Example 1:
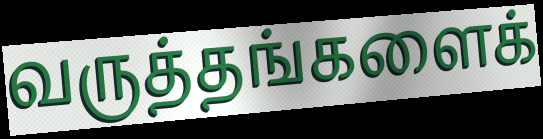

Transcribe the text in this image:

வருத்தங்களைக்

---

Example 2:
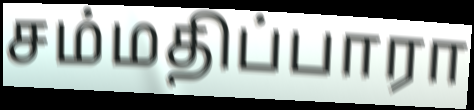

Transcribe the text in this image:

சம்மதிப்பாரா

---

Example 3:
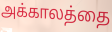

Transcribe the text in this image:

அக்காலத்தை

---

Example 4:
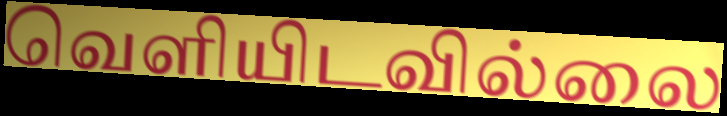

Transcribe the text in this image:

வெளியிடவில்லை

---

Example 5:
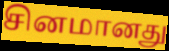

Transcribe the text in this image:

சினமானது